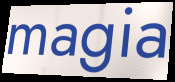
magia